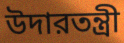
উদারতন্ত্রী